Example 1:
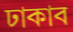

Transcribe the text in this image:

ঢাকাব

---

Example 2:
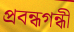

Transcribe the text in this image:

প্রবন্ধগন্ধী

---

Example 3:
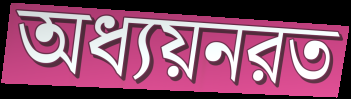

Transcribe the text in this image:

অধ্যয়নরত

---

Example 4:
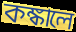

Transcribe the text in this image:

কঙ্কালে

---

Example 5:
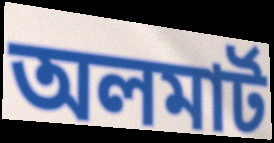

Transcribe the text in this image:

অলমার্ট